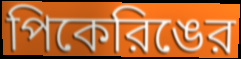
পিকেরিঙের